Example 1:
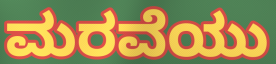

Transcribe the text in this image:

ಮರವೆಯು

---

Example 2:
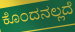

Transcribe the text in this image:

ಕೊಂದನಲ್ಲದೆ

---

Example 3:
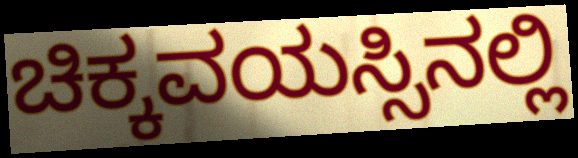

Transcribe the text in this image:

ಚಿಕ್ಕವಯಸ್ಸಿನಲ್ಲಿ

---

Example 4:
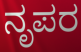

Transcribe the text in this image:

ನೃಪರ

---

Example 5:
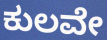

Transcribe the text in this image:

ಕುಲವೇ